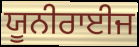
ਯੂਨੀਰਾਈਜ